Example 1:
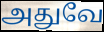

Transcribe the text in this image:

அதுவே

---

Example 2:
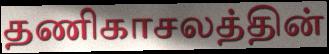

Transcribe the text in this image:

தணிகாசலத்தின்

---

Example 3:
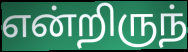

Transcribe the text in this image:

என்றிருந்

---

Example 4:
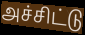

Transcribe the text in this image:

அச்சிட்டு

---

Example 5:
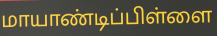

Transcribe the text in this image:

மாயாண்டிப்பிள்ளை